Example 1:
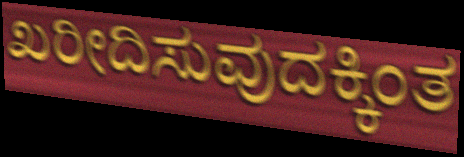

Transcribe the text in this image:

ಖರೀದಿಸುವುದಕ್ಕಿಂತ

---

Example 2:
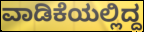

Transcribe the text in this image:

ವಾಡಿಕೆಯಲ್ಲಿದ್ದ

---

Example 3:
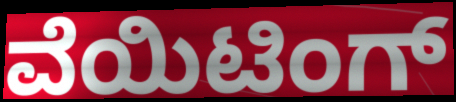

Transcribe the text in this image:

ವೆಯಿಟಿಂಗ್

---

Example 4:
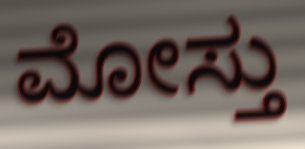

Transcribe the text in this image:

ಮೋಸ್ತು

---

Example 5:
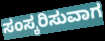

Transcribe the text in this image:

ಸಂಸ್ಕರಿಸುವಾಗ